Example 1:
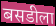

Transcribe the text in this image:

बसडीला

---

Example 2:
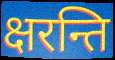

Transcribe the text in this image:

क्षरन्ति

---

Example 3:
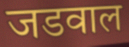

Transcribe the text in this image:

जडवाल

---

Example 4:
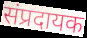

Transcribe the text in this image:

संप्रदायक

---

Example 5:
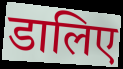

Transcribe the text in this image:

डालिए